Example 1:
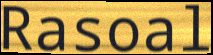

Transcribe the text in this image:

Rasoal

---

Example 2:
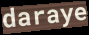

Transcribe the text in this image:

daraye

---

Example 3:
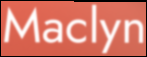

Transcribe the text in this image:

Maclyn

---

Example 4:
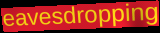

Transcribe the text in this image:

eavesdropping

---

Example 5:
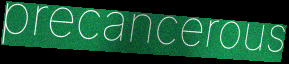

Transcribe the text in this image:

precancerous